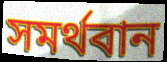
সমর্থবান